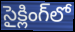
సైక్లింగ్‌లో